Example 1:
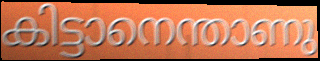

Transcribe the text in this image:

കിട്ടാനെന്താണു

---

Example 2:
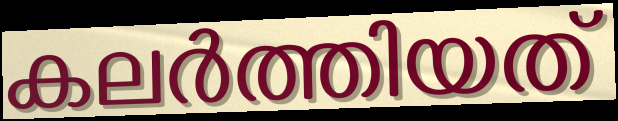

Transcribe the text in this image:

കലർത്തിയത്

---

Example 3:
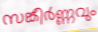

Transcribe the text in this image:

സങ്കീർണ്ണവും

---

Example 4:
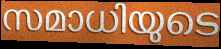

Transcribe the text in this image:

സമാധിയുടെ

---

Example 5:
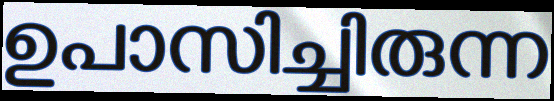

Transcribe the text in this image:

ഉപാസിച്ചിരുന്ന